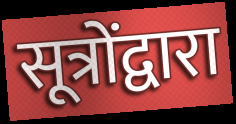
सूत्रोंद्वारा